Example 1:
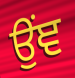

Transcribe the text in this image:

ਉਂਞ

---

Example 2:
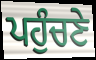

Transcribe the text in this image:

ਪਹੁੰਚਣੇ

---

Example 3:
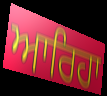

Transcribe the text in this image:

ਆਰਿਹਾ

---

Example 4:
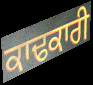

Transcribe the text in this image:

ਕਾਢਕਾਰੀ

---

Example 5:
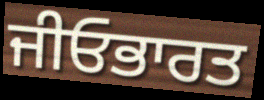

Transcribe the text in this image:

ਜੀਓਭਾਰਤ